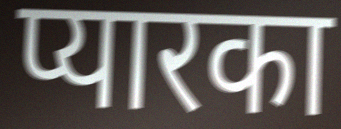
प्यारका